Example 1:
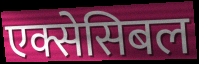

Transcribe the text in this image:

एक्सेसिबल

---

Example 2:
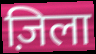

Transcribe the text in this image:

ज़िला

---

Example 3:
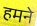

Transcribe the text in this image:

हमने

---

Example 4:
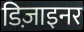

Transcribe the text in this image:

डिज़ाइनर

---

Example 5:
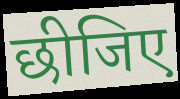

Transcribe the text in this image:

छीजिए